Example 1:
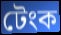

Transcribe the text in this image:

টেংক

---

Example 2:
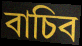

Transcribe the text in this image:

বাচিব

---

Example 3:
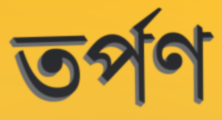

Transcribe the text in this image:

তৰ্পণ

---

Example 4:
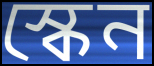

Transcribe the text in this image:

স্কেন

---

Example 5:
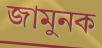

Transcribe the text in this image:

জামুনক